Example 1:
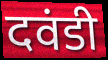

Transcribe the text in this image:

दवंडी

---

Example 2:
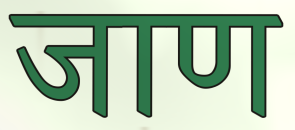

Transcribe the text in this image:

जाण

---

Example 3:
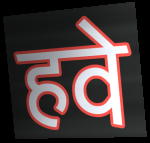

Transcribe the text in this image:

हवे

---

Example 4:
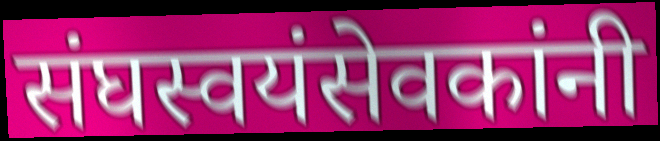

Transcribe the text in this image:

संघस्वयंसेवकांनी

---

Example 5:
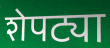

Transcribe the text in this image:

शेपट्या